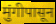
मुंगीपासून